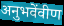
अनुभवेंवीण